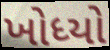
ખોધ્યો